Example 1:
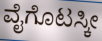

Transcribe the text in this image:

ವೈಗೊಟಸ್ಕೀ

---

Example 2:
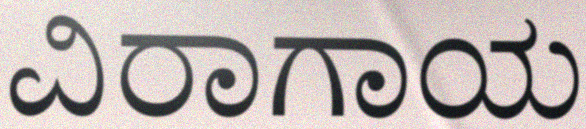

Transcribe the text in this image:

ವಿರಾಗಾಯ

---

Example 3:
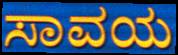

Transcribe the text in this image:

ಸಾವಯ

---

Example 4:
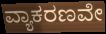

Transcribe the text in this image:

ವ್ಯಾಕರಣವೇ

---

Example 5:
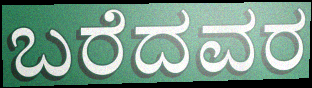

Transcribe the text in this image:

ಬರೆದವರ